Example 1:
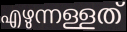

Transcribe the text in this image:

എഴുന്നള്ളത്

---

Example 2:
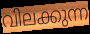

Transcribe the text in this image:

വിലക്കുന്ന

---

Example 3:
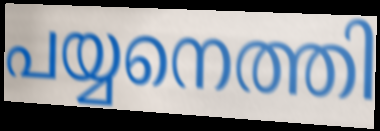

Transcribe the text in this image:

പയ്യനെത്തി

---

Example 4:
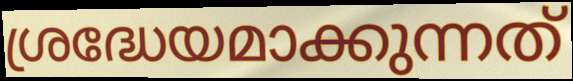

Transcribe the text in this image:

ശ്രദ്ധേയമാക്കുന്നത്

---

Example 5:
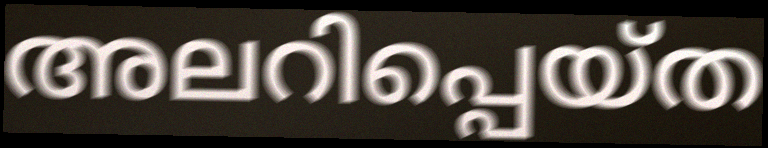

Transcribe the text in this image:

അലറിപ്പെയ്ത